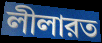
লীলারত